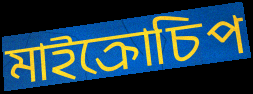
মাইক্রোচিপ